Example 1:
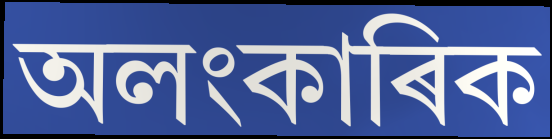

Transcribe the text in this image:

অলংকাৰিক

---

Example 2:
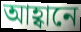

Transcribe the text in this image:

আহ্বানে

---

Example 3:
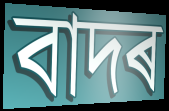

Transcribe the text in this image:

বাদৰ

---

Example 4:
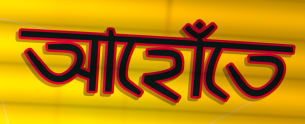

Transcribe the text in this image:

আহোঁতে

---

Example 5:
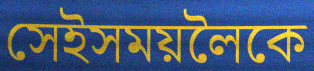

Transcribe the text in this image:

সেইসময়লৈকে